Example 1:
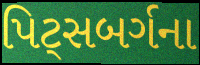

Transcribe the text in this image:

પિટ્સબર્ગના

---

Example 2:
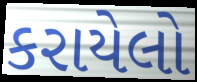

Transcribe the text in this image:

કરાયેલો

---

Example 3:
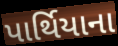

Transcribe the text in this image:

પાર્થિયાના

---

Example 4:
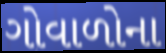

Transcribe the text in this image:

ગોવાળોના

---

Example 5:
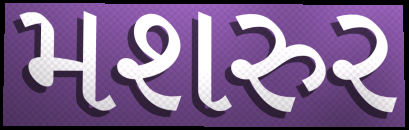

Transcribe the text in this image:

મશરુર